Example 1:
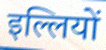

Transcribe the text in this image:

इल्लियों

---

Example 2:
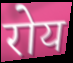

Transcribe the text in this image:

रोय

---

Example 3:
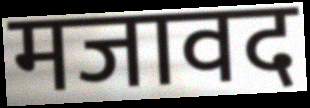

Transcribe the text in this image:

मजावद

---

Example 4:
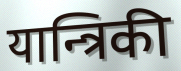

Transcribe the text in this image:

यान्त्रिकी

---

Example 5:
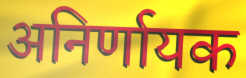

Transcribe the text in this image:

अनिर्णायक